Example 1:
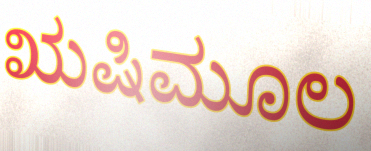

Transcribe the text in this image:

ಋಷಿಮೂಲ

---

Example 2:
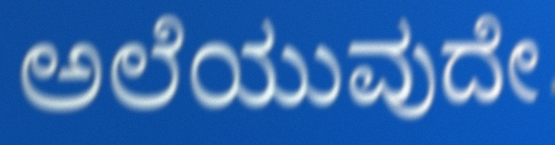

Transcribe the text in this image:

ಅಲೆಯುವುದೇ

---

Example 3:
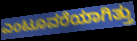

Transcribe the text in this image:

ಎಂಟೂವರೆಯಾಗಿತ್ತು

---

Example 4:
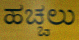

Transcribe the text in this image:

ಹಚ್ಚಲು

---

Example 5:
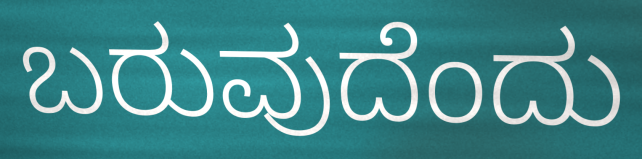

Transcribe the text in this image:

ಬರುವುದೆಂದು